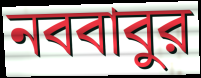
নববাবুর